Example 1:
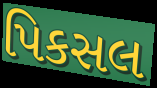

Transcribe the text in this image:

પિકસલ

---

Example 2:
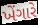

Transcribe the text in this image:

ખેંગારે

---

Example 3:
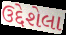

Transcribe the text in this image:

ઉદ્દેશેલા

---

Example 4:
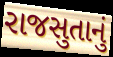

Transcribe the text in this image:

રાજસુતાનું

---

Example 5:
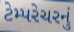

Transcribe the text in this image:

ટેમ્પરેચરનું